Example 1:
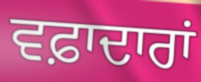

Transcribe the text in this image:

ਵਫ਼ਾਦਾਰਾਂ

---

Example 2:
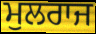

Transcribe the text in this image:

ਮੁਲਰਾਜ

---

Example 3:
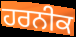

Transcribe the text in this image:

ਹਰਨੀਕ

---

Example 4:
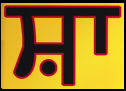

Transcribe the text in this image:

ਸ਼ਾ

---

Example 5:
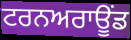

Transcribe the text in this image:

ਟਰਨਅਰਾਊਂਡ